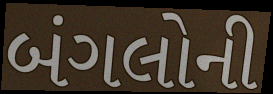
બંગલોની